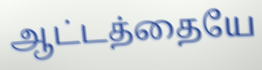
ஆட்டத்தையே